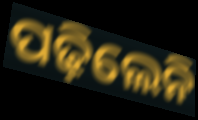
ପଢ଼ିଲେନି